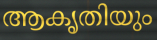
ആകൃതിയും